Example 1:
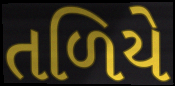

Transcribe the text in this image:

તળિયે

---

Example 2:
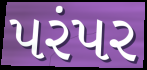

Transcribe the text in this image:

પરંપર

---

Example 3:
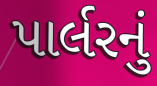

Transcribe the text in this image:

પાર્લરનું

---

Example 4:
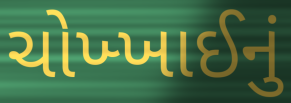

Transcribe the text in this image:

ચોખ્ખાઈનું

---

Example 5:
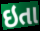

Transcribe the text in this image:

ઇતા